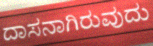
ದಾಸನಾಗಿರುವುದು